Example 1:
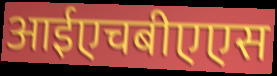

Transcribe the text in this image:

आईएचबीएएस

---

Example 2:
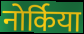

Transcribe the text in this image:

नोर्किया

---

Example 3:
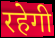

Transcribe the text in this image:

रहेगी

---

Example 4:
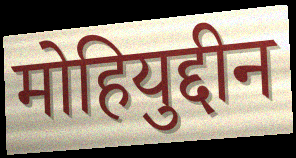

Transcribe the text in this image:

मोहियुद्दीन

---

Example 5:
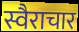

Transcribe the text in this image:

स्वैराचार